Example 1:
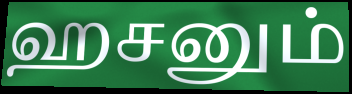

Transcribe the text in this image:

ஹசனும்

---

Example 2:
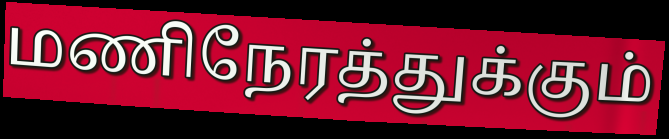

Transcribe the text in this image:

மணிநேரத்துக்கும்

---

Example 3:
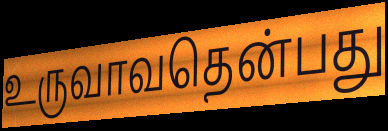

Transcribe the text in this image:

உருவாவதென்பது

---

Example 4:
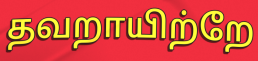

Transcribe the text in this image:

தவறாயிற்றே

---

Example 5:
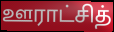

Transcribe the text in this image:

ஊராட்சித்